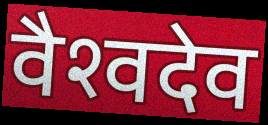
वैश्वदेव